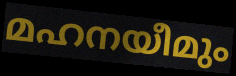
മഹനയീമും